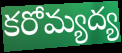
కరోమ్యద్య